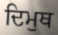
ਦਿਮੁਥ